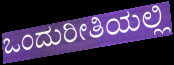
ಒಂದುರೀತಿಯಲ್ಲಿ